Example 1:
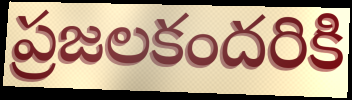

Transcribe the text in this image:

ప్రజలకందరికి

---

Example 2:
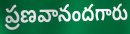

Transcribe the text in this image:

ప్రణవానందగారు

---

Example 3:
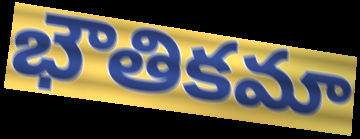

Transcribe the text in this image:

భౌతికమా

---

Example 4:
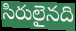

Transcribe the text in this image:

సిరులైనది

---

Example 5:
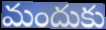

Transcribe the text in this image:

మందుకు